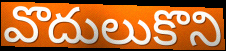
వొదులుకొని